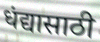
धंद्यासाठी